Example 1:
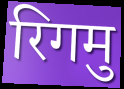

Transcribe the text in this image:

रिगमु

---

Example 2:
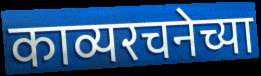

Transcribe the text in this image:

काव्यरचनेच्या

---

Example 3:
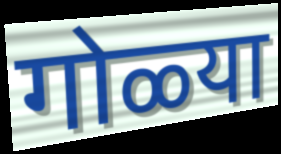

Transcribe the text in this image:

गोळ्या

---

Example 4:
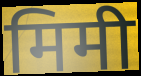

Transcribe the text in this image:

मिमी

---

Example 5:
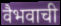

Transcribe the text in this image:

वैभवाची